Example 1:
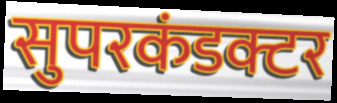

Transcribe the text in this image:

सुपरकंडक्टर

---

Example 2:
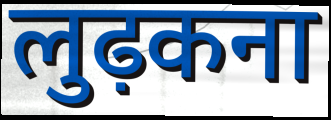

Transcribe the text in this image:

लुढ़कना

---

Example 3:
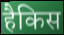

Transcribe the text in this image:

हैकिस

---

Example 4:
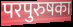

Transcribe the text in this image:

परपुरुषका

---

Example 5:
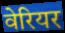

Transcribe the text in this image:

वेरियर